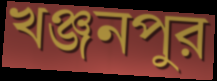
খঞ্জনপুর